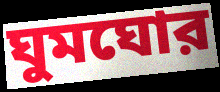
ঘুমঘোর